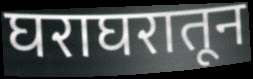
घराघरातून